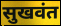
सुखवंत